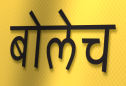
बोलेच